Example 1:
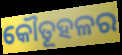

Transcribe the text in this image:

କୌତୂହଳର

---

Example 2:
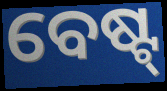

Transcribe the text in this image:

ବେଷ୍ଟ୍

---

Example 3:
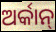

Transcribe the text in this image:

ଅର୍କାନ୍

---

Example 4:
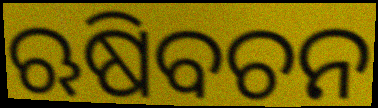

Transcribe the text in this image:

ଋଷିବଚନ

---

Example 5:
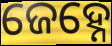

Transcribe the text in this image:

ଜେହ୍ନେ